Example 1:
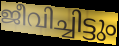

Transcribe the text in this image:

ജീവിച്ചിട്ടും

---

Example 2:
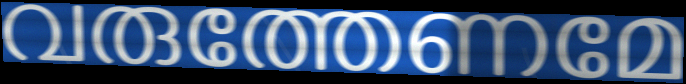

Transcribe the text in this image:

വരുത്തേണമേ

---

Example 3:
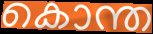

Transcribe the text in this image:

കൊന്ത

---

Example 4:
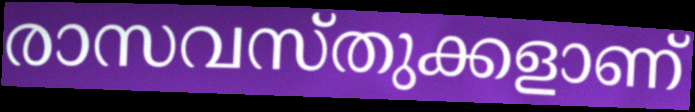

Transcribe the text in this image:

രാസവസ്തുക്കളാണ്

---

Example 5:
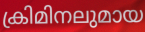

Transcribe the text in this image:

ക്രിമിനലുമായ